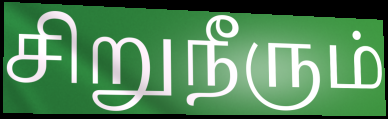
சிறுநீரும்